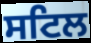
ਸਟਿਲ